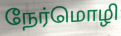
நேர்மொழி